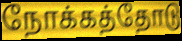
நோக்கத்தோடு